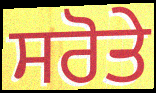
ਸਰੋਤੇ